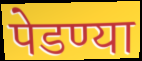
पेडण्या